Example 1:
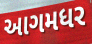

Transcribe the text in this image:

આગમધર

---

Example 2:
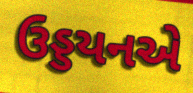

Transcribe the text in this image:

ઉડ્ડયનએ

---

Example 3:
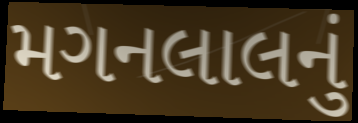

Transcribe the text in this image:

મગનલાલનું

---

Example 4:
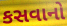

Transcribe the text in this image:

કસવાનો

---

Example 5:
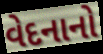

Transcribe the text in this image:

વેદનાનો